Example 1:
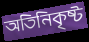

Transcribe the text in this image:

অতিনিকৃষ্ট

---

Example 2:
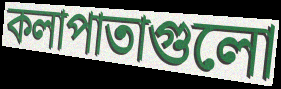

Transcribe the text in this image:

কলাপাতাগুলো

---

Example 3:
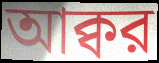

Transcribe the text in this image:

আক্বর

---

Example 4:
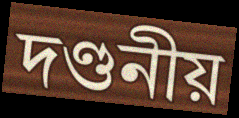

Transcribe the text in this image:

দণ্ডনীয়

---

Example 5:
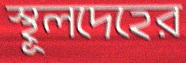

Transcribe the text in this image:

স্থূলদেহের